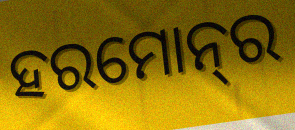
ହରମୋନ୍‍ର